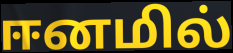
ஈனமில்